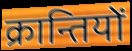
क्रान्तियों